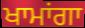
ਖਾਮਾਂਗਾ